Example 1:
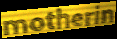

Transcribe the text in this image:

motherin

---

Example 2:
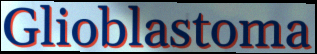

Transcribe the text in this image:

Glioblastoma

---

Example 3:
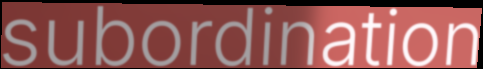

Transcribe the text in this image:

subordination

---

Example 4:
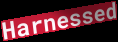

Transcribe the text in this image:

Harnessed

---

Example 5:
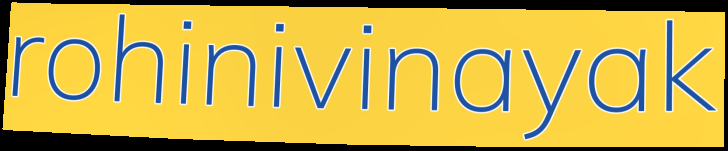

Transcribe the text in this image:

rohinivinayak